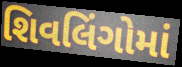
શિવલિંગોમાં